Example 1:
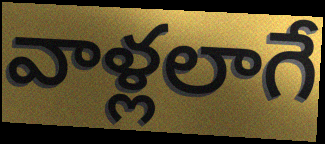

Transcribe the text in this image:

వాళ్లలాగే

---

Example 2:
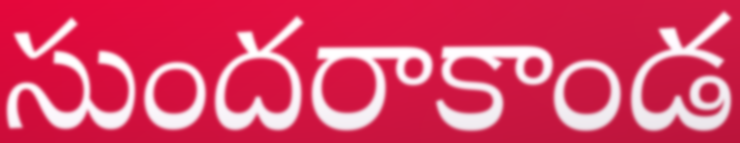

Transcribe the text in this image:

సుందరాకాండ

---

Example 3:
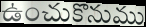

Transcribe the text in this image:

ఉంచుకొనుము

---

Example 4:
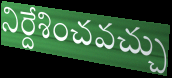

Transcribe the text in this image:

నిర్దేశించవచ్చు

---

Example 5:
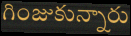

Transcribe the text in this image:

గింజుకున్నారు